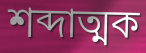
শব্দাত্মক